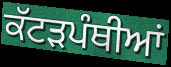
ਕੱਟੜਪੰਥੀਆਂ